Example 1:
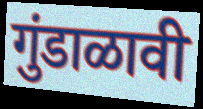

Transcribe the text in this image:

गुंडाळावी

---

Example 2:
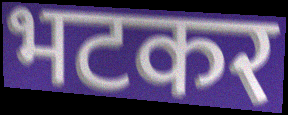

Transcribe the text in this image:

भटकर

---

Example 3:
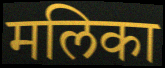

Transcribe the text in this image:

मलिका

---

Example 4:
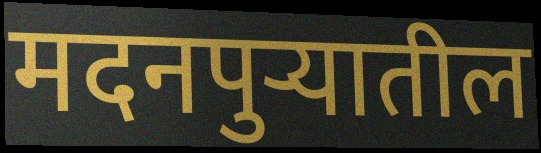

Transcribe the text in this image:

मदनपुऱ्यातील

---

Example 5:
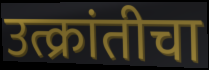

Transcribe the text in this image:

उत्क्रांतीचा